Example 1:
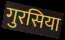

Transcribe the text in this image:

गुरसिया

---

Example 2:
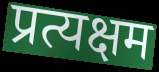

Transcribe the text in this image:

प्रत्यक्षम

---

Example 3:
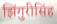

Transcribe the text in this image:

झिंगुरीसिंह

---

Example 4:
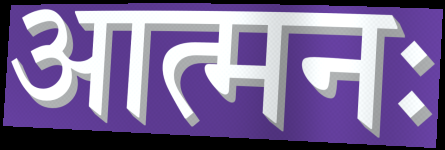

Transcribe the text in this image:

आत्मनः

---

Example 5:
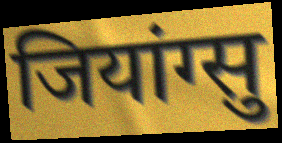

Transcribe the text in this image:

जियांग्सु